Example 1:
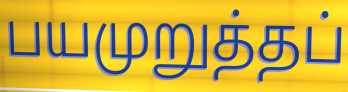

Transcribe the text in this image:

பயமுறுத்தப்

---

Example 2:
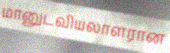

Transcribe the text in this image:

மானுடவியலாளரான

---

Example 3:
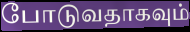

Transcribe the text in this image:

போடுவதாகவும்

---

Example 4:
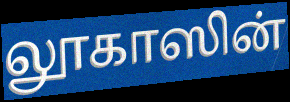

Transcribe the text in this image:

லூகாஸின்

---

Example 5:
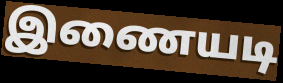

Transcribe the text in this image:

இணையடி